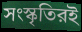
সংস্কৃতিরই